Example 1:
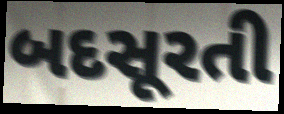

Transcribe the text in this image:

બદસૂરતી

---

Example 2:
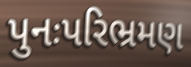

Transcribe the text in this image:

પુનઃપરિભ્રમણ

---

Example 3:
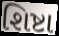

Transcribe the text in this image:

શિષ્ટા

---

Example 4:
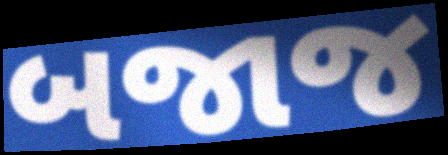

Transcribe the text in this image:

બજાજ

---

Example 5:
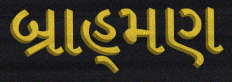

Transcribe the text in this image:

બ્રાહ્‌મણ